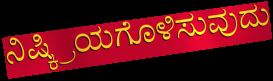
ನಿಷ್ಕ್ರಿಯಗೊಳಿಸುವುದು